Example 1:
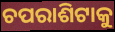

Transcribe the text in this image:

ଚପରାଶିଟାକୁ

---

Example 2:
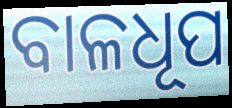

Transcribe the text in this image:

ବାଳଧୂପ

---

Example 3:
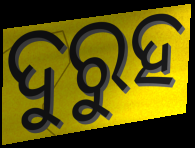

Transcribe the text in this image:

ଦୁରୁହ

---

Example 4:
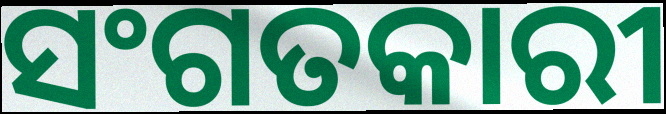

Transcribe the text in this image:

ସଂଗତକାରୀ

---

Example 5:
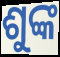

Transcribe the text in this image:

ଶୁଙ୍କ